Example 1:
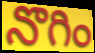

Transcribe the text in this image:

నొగిం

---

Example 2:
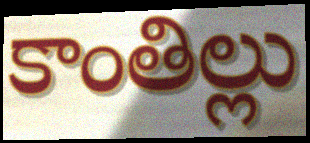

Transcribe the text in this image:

కాంతిల్లు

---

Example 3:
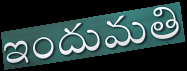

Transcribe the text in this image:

ఇందుమతి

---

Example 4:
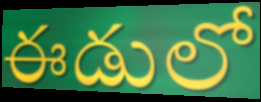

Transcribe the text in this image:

ఈడులో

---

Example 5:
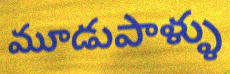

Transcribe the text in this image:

మూడుపాళ్ళు